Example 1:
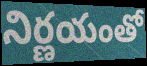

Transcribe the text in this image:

నిర్ణయంతో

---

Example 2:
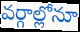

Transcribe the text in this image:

వర్గాల్లోనూ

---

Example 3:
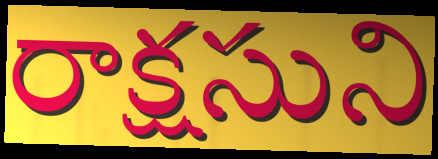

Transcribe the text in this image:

రాక్షసుని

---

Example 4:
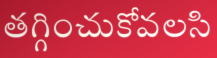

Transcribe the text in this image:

తగ్గించుకోవలసి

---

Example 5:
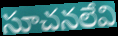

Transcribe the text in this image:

సూచనలేవి